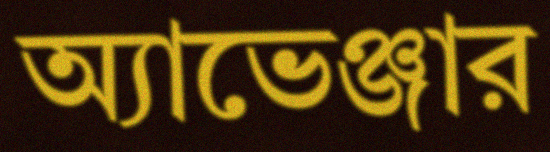
অ্যাভেঞ্জার